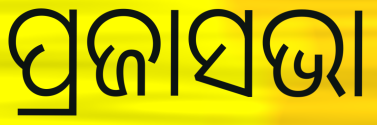
ପ୍ରଜାସଭା